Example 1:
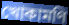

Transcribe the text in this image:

খোকামণি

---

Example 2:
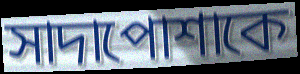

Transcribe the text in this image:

সাদাপোশাকে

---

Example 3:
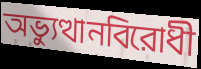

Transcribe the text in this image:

অভ্যুত্থানবিরোধী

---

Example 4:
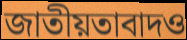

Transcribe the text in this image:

জাতীয়তাবাদও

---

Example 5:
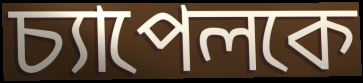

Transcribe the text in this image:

চ্যাপেলকে